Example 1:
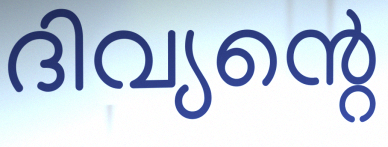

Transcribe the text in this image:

ദിവ്യന്റെ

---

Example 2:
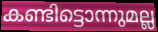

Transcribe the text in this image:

കണ്ടിട്ടൊന്നുമല്ല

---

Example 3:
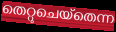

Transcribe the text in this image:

തെറ്റുചെയ്‌തെന്ന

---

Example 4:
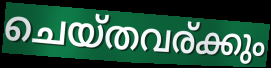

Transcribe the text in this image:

ചെയ്തവര്ക്കും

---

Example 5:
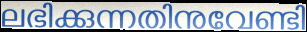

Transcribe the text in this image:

ലഭിക്കുന്നതിനുവേണ്ടി